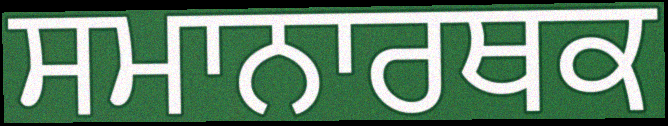
ਸਮਾਨਾਰਥਕ